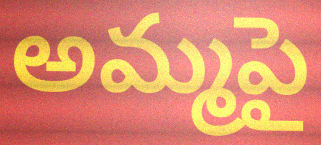
అమ్మపై